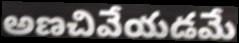
అణచివేయడమే